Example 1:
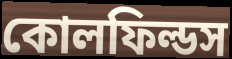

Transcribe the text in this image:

কোলফিল্ডস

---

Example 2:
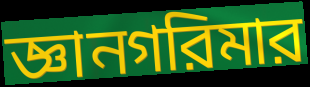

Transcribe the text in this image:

জ্ঞানগরিমার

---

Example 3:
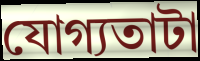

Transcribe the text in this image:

যোগ্যতাটা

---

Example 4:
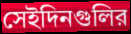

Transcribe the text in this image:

সেইদিনগুলির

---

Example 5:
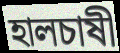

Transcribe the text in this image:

হালচাষী